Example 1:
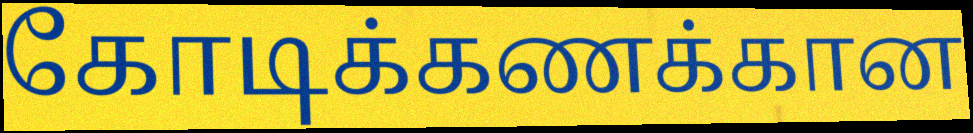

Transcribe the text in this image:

கோடிக்கணக்கான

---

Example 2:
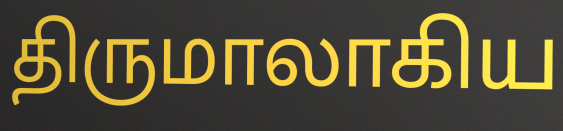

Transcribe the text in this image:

திருமாலாகிய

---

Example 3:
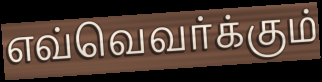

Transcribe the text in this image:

எவ்வெவர்க்கும்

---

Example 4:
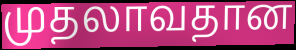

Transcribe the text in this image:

முதலாவதான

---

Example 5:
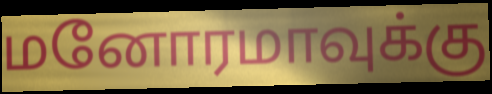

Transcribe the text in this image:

மனோரமாவுக்கு